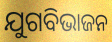
ଯୁଗବିଭାଜନ